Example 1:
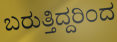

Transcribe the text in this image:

ಬರುತ್ತಿದ್ದರಿಂದ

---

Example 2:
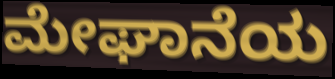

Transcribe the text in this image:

ಮೇಘಾನೆಯ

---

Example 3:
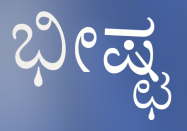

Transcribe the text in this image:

ಭೀಷ್ಟ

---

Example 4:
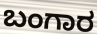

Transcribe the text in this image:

ಬಂಗಾರ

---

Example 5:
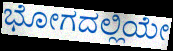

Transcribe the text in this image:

ಭೋಗದಲ್ಲಿಯೇ